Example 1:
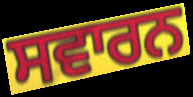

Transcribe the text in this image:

ਸਵਾਰਨ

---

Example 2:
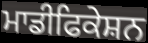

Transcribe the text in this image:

ਮਾਡੀਫਿਕੇਸ਼ਨ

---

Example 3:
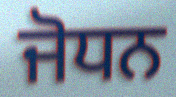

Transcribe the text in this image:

ਜੋਧਨ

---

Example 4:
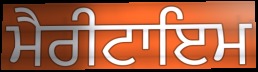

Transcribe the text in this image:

ਮੈਰੀਟਾਇਮ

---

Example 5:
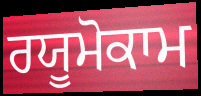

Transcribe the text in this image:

ਰਯੂਮੋਕਾਮ